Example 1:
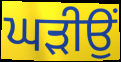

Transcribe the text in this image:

ਘੜੀਉਂ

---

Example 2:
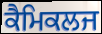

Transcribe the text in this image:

ਕੈਮਿਕਲਜ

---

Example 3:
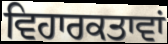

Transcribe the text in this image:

ਵਿਹਾਰਕਤਾਵਾਂ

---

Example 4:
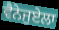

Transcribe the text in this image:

ਵੈਨੇਜੁਏਲਾ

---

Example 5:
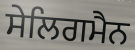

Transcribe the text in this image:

ਸੇਲਿਗਮੈਨ